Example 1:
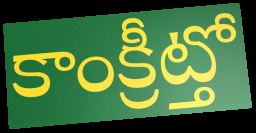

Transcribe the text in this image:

కాంక్రీట్తో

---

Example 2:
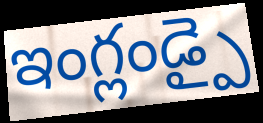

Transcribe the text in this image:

ఇంగ్లండ్పై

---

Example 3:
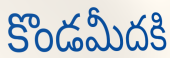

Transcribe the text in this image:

కొండమీదకి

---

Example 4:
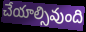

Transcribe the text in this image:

చేయాల్సివుంది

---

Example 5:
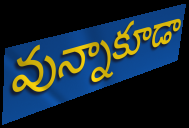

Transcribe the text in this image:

వున్నాకూడా